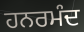
ਹਨਰਮੰਦ